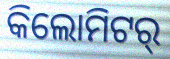
କିଲୋମିଟର୍